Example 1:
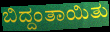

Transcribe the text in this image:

ಬಿದ್ದಂತಾಯಿತು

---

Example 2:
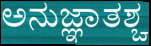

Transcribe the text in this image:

ಅನುಜ್ಞಾತಶ್ಚ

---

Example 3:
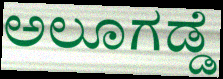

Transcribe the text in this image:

ಅಲೂಗಡ್ಡೆ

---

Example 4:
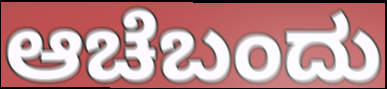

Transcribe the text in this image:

ಆಚೆಬಂದು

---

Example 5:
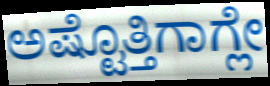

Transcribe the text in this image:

ಅಷ್ಟೊತ್ತಿಗಾಗ್ಲೇ